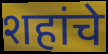
शहांचे